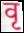
वृ